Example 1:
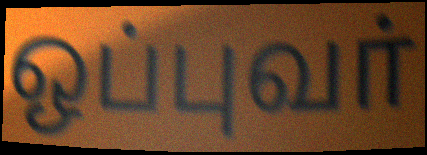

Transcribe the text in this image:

ஒப்புவர்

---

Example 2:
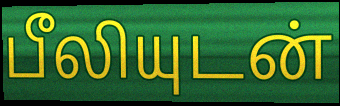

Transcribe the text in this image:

பீலியுடன்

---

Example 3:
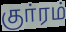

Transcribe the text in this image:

குர்ரம்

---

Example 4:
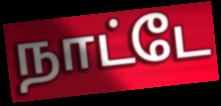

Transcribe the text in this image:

நாட்டே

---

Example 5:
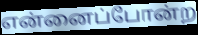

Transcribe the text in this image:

என்னைப்போன்ற